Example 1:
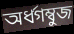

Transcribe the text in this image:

অর্ধগম্বুজ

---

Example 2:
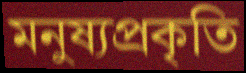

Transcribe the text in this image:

মনুষ্যপ্রকৃতি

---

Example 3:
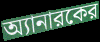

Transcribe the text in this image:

অ্যানারকের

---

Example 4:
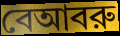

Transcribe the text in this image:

বেআবরু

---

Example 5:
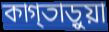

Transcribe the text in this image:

কাগ্‌তাড়ুয়া